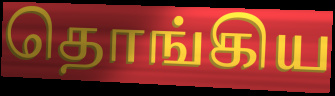
தொங்கிய